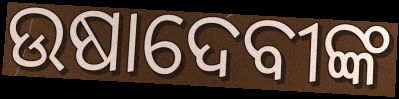
ଉଷାଦେବୀଙ୍କ